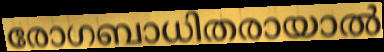
രോഗബാധിതരായാൽ